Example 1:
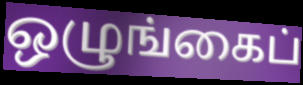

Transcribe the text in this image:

ஒழுங்கைப்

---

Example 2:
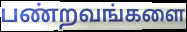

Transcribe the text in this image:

பண்றவங்களை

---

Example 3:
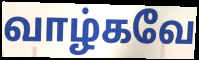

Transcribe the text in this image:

வாழ்கவே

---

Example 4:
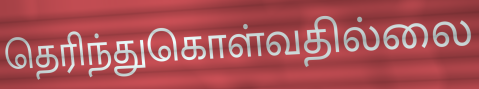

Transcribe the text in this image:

தெரிந்துகொள்வதில்லை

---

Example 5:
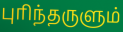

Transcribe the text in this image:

புரிந்தருளும்